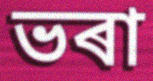
ভৰা